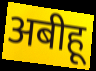
अबीहू